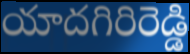
యాదగిరిరెడ్డి